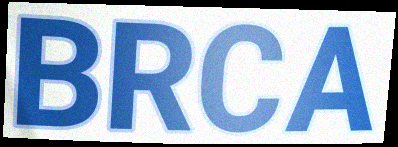
BRCA